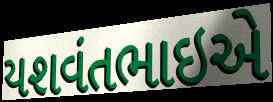
યશવંતભાઇએ